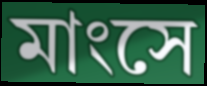
মাংসে